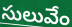
సులువేం